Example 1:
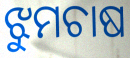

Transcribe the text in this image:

ଝୁମଚାଷ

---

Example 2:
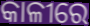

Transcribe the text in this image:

କାଳୀରେ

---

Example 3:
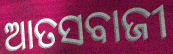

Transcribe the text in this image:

ଆତସବାଜୀ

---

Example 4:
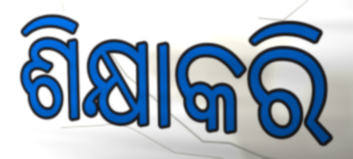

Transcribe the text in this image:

ଶିକ୍ଷାକରି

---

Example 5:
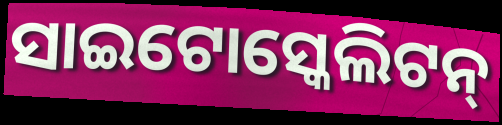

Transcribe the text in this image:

ସାଇଟୋସ୍କେଲିଟନ୍